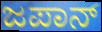
ಜಪಾನ್